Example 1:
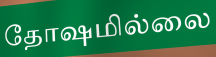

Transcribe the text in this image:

தோஷமில்லை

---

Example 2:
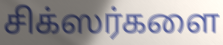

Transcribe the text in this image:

சிக்ஸர்களை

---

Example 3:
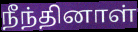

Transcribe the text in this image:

நீந்தினாள்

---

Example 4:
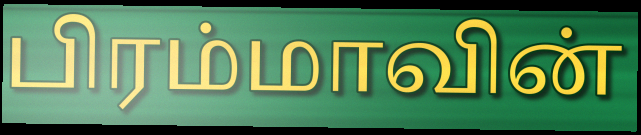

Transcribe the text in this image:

பிரம்மாவின்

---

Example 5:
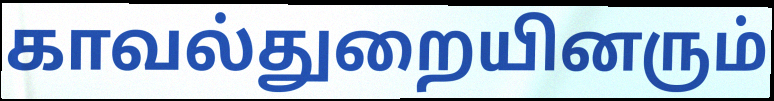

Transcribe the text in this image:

காவல்துறையினரும்